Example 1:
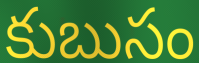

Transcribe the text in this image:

కుబుసం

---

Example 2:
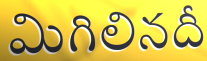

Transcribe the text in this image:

మిగిలినదీ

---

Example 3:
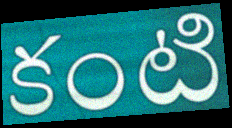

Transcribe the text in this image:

కంటి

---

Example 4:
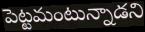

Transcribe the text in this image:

పెట్టమంటున్నాడని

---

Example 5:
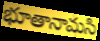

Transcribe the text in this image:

భూతానామసి